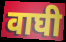
वाघी